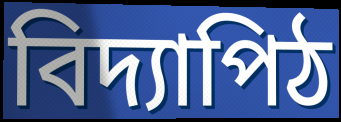
বিদ্যাপিঠ